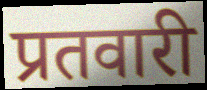
प्रतवारी